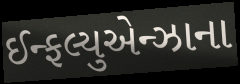
ઈન્ફલ્યુએન્ઝાના